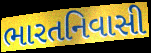
ભારતનિવાસી